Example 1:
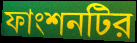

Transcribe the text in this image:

ফাংশনটির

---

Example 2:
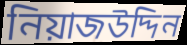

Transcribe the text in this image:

নিয়াজউদ্দিন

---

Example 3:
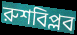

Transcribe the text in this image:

রুশবিপ্লব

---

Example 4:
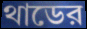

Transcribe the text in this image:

থাডের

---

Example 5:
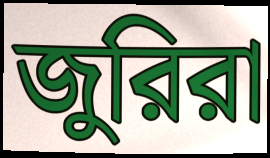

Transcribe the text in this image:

জুরিরা